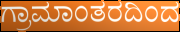
ಗ್ರಾಮಾಂತರದಿಂದ